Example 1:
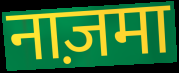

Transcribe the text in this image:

नाज़मा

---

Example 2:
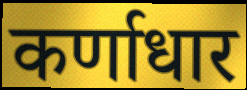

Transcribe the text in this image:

कर्णाधार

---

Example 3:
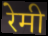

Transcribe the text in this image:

रेमी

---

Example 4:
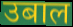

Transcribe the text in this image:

उबाल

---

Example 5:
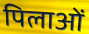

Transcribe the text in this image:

पिलाओं